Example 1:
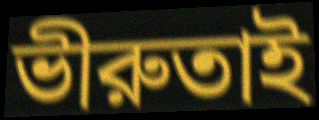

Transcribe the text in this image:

ভীরুতাই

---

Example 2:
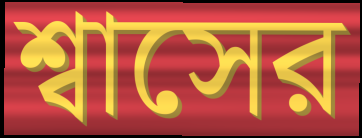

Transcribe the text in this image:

শ্বাসের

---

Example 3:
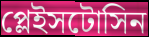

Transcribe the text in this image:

প্লেইসটোসিন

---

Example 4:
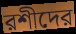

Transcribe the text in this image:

রশীদের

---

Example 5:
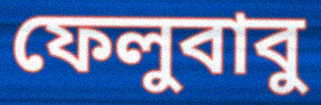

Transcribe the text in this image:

ফেলুবাবু